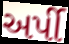
અર્પી